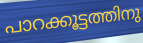
പാറക്കൂട്ടത്തിനു